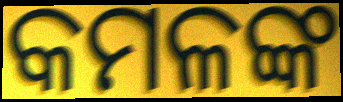
କମଳଙ୍କ